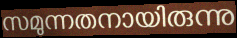
സമുന്നതനായിരുന്നു